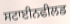
ਸਟਾਈਨਫੀਲਡ